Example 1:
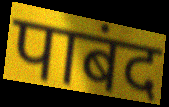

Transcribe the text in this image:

पाबंद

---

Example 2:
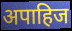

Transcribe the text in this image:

अपाहिज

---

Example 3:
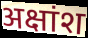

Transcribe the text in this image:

अक्षांश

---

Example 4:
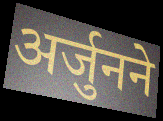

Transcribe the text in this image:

अर्जुनने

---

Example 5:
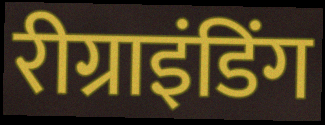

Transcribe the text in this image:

रीग्राइंडिंग